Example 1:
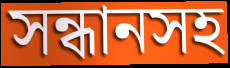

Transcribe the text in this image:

সন্ধানসহ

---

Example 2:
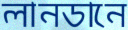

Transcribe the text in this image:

লানডানে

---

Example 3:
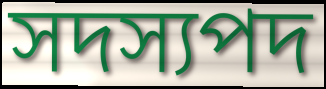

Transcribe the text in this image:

সদস্যপদ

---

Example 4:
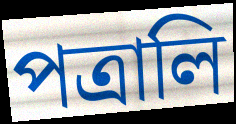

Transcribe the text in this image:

পত্রালি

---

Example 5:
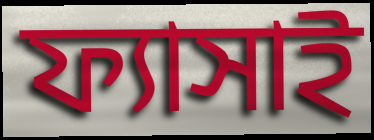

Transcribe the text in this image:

ফ্যাসাই